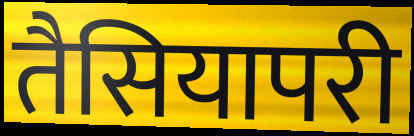
तैसियापरी